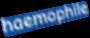
haemophile